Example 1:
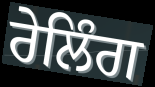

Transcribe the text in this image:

ਰੇਲਿੰਗ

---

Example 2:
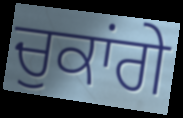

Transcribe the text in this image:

ਚੁਕਾਂਗੇ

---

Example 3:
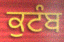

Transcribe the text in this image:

ਕੁਟੰਬ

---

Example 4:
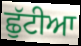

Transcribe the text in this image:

ਛੁੱਟੀਆ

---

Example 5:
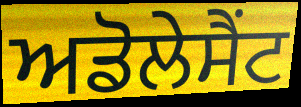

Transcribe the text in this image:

ਅਡੋਲੇਸੈਂਟ